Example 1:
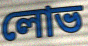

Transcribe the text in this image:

লোভ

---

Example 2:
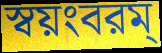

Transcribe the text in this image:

স্বয়ংবরম্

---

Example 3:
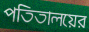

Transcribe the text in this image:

পতিতালয়ের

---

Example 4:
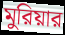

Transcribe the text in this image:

মুরিয়ার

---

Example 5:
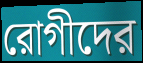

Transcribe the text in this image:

রোগীদের